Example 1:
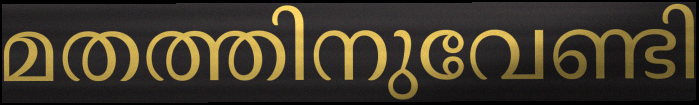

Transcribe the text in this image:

മതത്തിനുവേണ്ടി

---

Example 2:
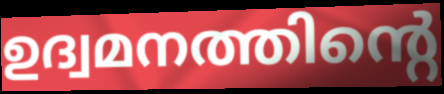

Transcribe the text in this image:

ഉദ്വമനത്തിന്റെ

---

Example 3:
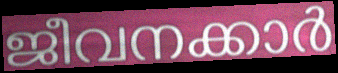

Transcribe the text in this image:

ജീവനക്കാർ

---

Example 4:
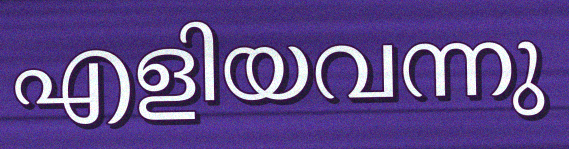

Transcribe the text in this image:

എളിയവന്നു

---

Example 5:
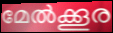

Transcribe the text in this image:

മേൽക്കൂര